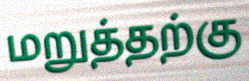
மறுத்தற்கு